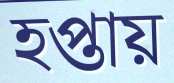
হপ্তায়